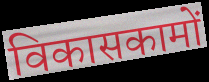
विकासकामों